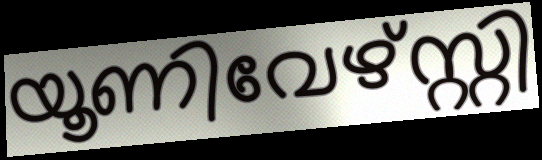
യൂണിവേഴ്സ്റ്റി